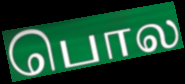
பொல